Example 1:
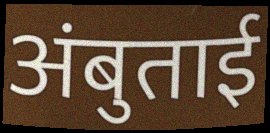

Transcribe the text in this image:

अंबुताई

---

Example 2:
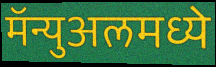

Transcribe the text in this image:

मॅन्युअलमध्ये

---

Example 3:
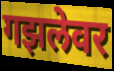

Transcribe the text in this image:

गझलेवर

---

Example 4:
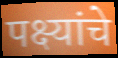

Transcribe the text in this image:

पक्ष्यांचे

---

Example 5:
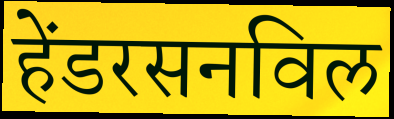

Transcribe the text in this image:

हेंडरसनविल